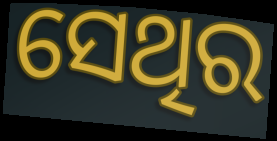
ସେଥିର